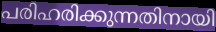
പരിഹരിക്കുന്നതിനായി